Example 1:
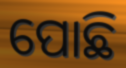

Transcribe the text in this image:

ପୋଛି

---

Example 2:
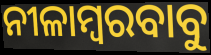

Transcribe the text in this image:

ନୀଳାମ୍ବରବାବୁ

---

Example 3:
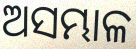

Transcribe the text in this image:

ଅସମ୍ଭାଳ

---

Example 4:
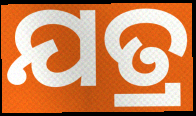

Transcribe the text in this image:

ଯତ୍ର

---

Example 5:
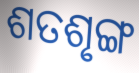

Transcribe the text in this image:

ଶତଶୃଙ୍ଗ